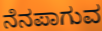
ನೆನಪಾಗುವ